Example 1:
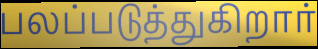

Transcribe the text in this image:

பலப்படுத்துகிறார்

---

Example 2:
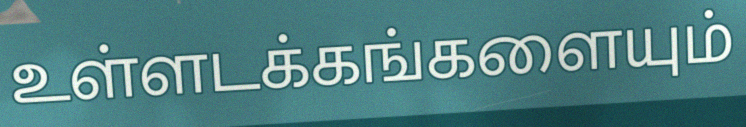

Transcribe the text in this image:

உள்ளடக்கங்களையும்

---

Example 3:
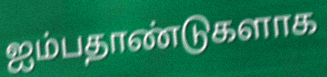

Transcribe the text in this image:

ஐம்பதாண்டுகளாக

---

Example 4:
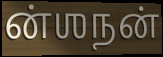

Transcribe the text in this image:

ன்ஶநன்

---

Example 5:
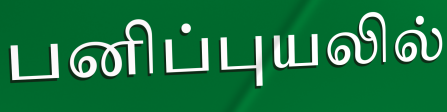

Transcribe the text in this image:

பனிப்புயலில்